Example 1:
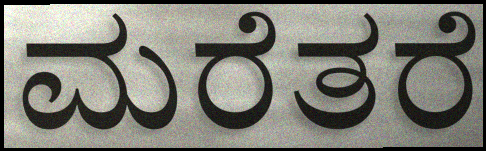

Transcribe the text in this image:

ಮರೆತರೆ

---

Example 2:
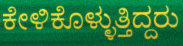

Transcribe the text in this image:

ಕೇಳಿಕೊಳ್ಳುತ್ತಿದ್ದರು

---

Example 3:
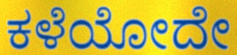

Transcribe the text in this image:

ಕಳೆಯೋದೇ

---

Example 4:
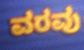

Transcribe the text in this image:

ವರವು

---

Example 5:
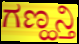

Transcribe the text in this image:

ಗಣ್ಹನ್ತಿ